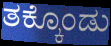
ತಕ್ಕೊಂಡು